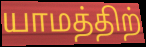
யாமத்திற்